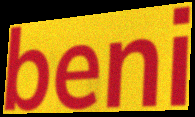
beni